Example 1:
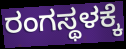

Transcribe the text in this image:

ರಂಗಸ್ಥಳಕ್ಕೆ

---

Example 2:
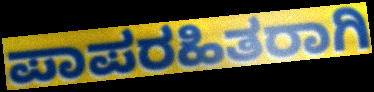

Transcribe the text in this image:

ಪಾಪರಹಿತರಾಗಿ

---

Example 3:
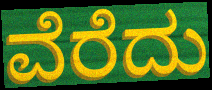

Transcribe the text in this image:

ವೆರೆದು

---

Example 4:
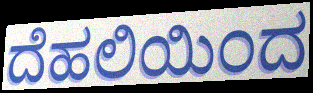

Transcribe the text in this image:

ದೆಹಲಿಯಿಂದ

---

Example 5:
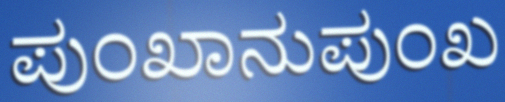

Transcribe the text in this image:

ಪುಂಖಾನುಪುಂಖ